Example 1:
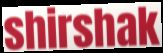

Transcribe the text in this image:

shirshak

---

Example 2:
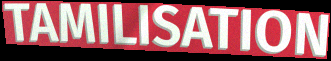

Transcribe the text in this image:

TAMILISATION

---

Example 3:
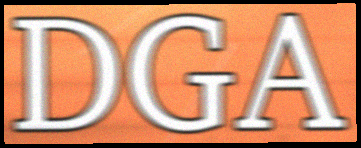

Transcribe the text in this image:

DGA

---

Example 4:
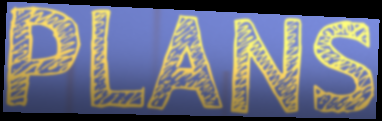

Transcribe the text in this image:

PLANS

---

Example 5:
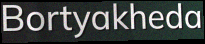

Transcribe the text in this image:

Bortyakheda